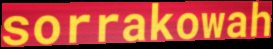
sorrakowah